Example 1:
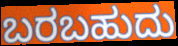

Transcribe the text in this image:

ಬರಬಹುದು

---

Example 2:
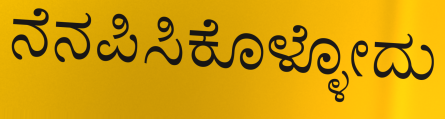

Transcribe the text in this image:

ನೆನಪಿಸಿಕೊಳ್ಳೋದು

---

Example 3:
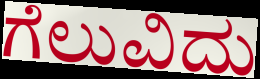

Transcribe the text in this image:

ಗೆಲುವಿದು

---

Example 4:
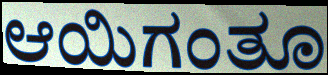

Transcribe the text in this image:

ಆಯಿಗಂತೂ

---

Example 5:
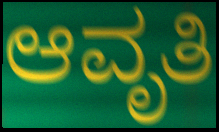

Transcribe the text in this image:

ಆವೃತಿ